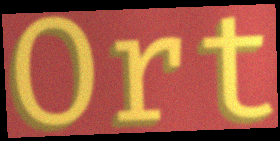
Ort